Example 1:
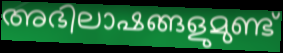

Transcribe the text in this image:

അഭിലാഷങ്ങളുമുണ്ട്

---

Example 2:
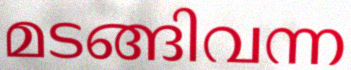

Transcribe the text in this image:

മടങ്ങിവന്ന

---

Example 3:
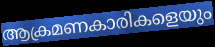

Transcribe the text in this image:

ആക്രമണകാരികളെയും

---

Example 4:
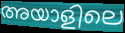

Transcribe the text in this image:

അയാളിലെ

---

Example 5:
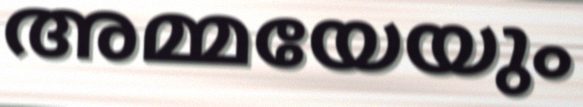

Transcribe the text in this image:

അമ്മയേയും